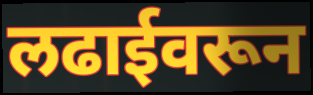
लढाईवरून